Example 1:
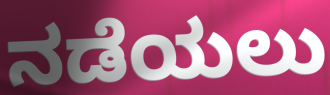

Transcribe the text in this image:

ನಡೆಯಲು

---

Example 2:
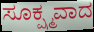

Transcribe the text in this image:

ಸೂಕ್ಷ್ಮವಾದ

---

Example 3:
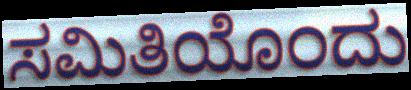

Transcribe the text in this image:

ಸಮಿತಿಯೊಂದು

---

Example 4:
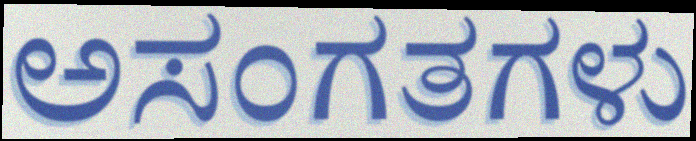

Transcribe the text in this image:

ಅಸಂಗತಗಳು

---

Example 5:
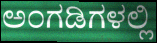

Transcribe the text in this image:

ಅಂಗಡಿಗಳಲ್ಲಿ